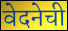
वेदनेची